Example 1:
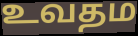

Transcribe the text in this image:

உவதம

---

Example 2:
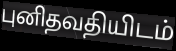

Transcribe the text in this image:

புனிதவதியிடம்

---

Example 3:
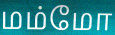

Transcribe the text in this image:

மம்மோ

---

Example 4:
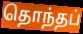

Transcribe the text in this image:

தொந்தப்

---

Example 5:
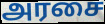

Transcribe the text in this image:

அரசை